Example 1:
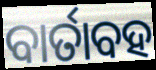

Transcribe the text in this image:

ବାର୍ତାବହ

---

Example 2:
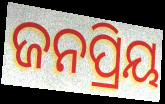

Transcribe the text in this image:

ଜନପ୍ରିୟ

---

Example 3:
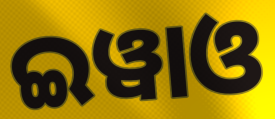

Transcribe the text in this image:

ଇୱାଓ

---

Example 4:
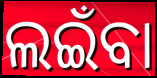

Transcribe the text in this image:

ଲଇଁବା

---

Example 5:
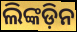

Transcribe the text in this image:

ଲିଙ୍କଡ଼ିନ